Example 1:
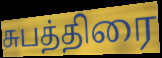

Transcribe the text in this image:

சுபத்திரை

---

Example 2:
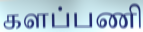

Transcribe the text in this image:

களப்பணி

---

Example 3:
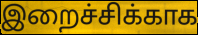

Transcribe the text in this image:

இறைச்சிக்காக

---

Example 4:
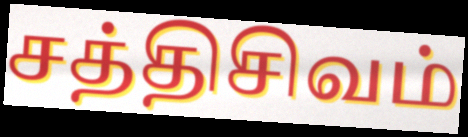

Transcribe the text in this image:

சத்திசிவம்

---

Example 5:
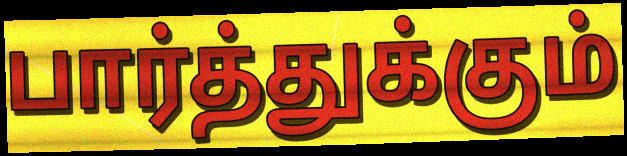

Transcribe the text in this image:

பார்த்துக்கும்